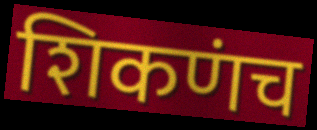
शिकणंच